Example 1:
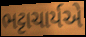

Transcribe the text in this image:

ભટ્ટાચાર્યએ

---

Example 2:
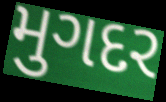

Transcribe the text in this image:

મુગદર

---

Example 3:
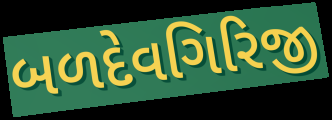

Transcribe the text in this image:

બળદેવગિરિજી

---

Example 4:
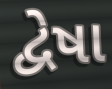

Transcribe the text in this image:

દ્વેષા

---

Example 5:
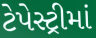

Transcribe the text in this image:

ટેપેસ્ટ્રીમાં